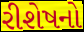
રીશેષનો